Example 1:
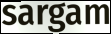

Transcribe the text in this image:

sargam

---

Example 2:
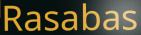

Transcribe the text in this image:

Rasabas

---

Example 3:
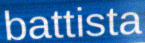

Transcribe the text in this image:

battista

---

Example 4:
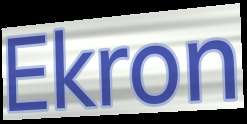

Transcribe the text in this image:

Ekron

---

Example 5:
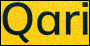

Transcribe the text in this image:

Qari